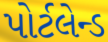
પોર્ટલેન્ડ